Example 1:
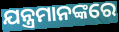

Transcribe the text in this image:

ଯନ୍ତ୍ରମାନଙ୍କରେ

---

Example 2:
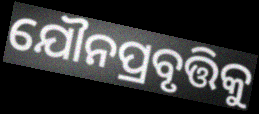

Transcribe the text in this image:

ଯୌନପ୍ରବୃତ୍ତିକୁ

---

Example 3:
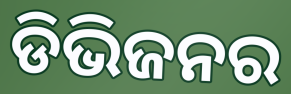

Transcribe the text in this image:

ଡିଭିଜନର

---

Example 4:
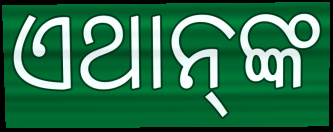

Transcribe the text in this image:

ଏଥାନ୍‍ଙ୍କ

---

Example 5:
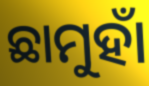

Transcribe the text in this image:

ଛାମୁହାଁ